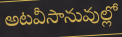
అటవీసానువుల్లో